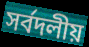
সর্বদলীয়